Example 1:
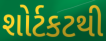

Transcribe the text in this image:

શોર્ટકટથી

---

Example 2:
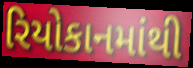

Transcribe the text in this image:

રિયોકાનમાંથી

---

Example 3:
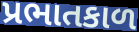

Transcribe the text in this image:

પ્રભાતકાળ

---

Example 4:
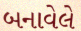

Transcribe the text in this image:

બનાવેલે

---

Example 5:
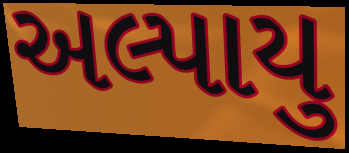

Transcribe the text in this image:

અલ્પાયુ